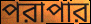
পরাপার